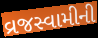
વ્રજસ્વામીની